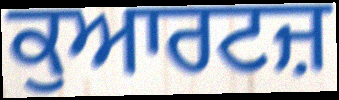
ਕੁਆਰਟਜ਼